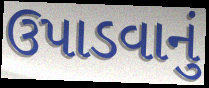
ઉપાડવાનું